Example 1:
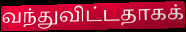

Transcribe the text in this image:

வந்துவிட்டதாகக்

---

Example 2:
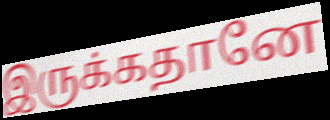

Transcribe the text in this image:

இருக்கதானே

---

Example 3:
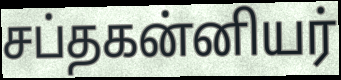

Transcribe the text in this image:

சப்தகன்னியர்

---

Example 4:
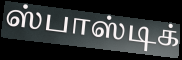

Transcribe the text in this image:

ஸ்பாஸ்டிக்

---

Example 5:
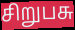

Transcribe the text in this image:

சிறுபசு